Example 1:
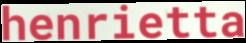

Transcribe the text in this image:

henrietta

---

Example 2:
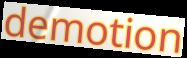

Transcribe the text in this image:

demotion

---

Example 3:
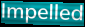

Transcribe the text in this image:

Impelled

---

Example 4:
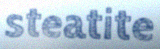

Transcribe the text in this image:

steatite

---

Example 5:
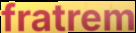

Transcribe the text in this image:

fratrem